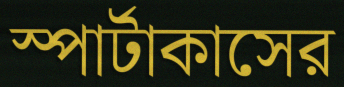
স্পার্টাকাসের